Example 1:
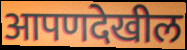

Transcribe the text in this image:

आपणदेखील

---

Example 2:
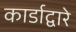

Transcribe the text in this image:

कार्डाद्वारे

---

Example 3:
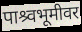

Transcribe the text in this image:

पाश्र्वभूमीवर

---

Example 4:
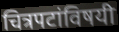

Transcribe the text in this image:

चित्रपटांविषयी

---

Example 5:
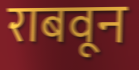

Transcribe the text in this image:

राबवून